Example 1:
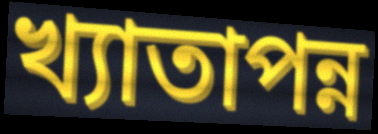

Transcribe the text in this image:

খ্যাতাপন্ন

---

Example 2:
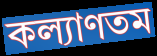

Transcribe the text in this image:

কল্যাণতম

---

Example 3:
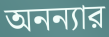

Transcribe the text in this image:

অনন্যার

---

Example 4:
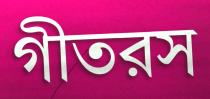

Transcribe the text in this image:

গীতরস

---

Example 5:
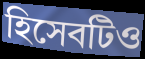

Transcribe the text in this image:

হিসেবটিও